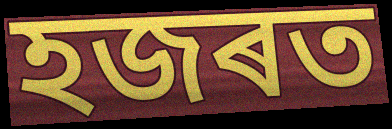
হজৰত